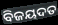
ବିଜୟଦତ